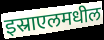
इस्राएलमधील